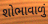
શોભાવાળું